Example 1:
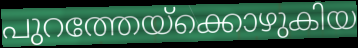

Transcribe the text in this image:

പുറത്തേയ്ക്കൊഴുകിയ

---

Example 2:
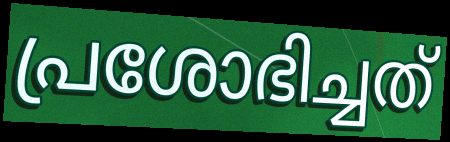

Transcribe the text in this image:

പ്രശോഭിച്ചത്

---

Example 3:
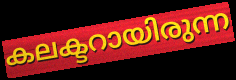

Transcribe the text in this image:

കലക്ടറായിരുന്ന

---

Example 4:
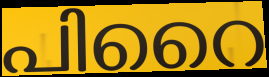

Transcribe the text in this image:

പിറൈ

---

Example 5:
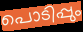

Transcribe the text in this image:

പൊടിപ്പും